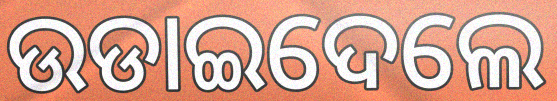
ଉଡାଇଦେଲେ